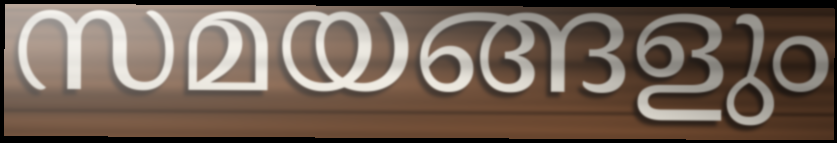
സമയങ്ങളും